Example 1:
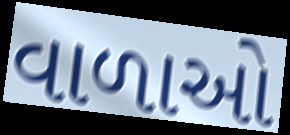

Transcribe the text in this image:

વાળાઓ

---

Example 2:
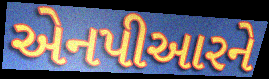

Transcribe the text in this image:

એનપીઆરને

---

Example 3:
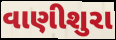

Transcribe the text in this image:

વાણીશુરા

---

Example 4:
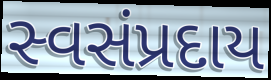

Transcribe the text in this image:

સ્વસંપ્રદાય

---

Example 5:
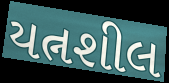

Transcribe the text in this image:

યત્નશીલ